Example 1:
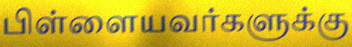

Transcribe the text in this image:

பிள்ளையவர்களுக்கு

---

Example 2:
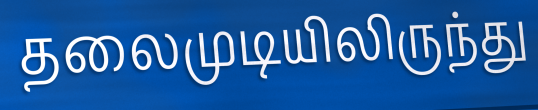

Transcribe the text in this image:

தலைமுடியிலிருந்து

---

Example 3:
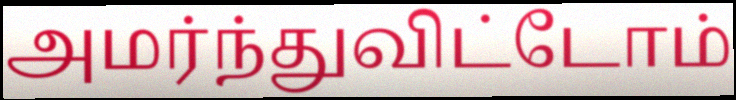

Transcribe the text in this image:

அமர்ந்துவிட்டோம்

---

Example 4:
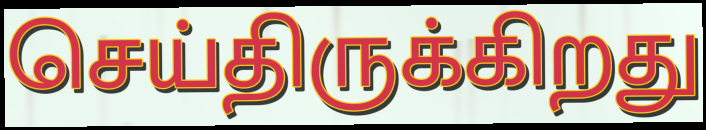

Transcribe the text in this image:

செய்திருக்கிறது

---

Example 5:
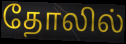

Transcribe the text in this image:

தோலில்